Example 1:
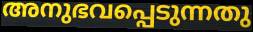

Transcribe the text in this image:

അനുഭവപ്പെടുന്നതു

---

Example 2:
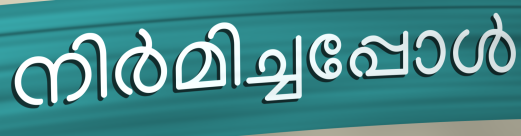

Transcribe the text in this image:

നിർമിച്ചപ്പോൾ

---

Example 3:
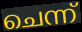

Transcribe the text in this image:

ചെന്ന്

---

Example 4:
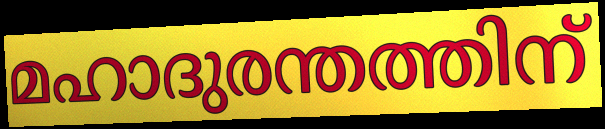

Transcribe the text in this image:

മഹാദുരന്തത്തിന്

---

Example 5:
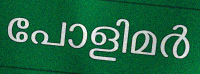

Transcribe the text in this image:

പോളിമർ